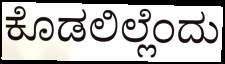
ಕೊಡಲಿಲ್ಲೆಂದು